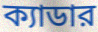
ক্যাডার